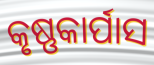
କୃଷ୍ଣକାର୍ପାସ